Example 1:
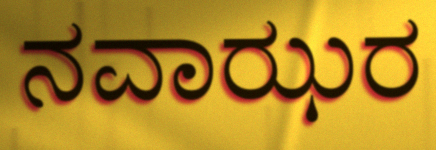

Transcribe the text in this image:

ನವಾಝರ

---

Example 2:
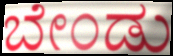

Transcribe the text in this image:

ಬೇಂಡು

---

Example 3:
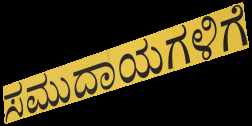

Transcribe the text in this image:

ಸಮುದಾಯಗಳಿಗೆ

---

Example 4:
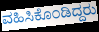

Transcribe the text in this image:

ವಹಿಸಿಕೊಂಡಿದ್ದರು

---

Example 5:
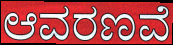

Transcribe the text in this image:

ಆವರಣವೆ